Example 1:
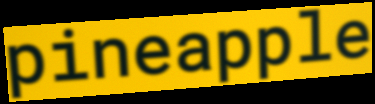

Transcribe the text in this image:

pineapple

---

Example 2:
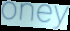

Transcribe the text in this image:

oney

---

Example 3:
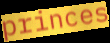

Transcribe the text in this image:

princes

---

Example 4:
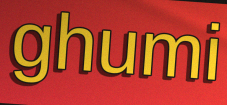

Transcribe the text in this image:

ghumi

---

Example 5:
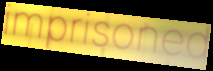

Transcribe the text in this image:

imprisoned